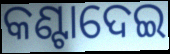
କଣ୍ଟାଦେଇ